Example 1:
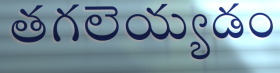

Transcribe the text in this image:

తగలెయ్యడం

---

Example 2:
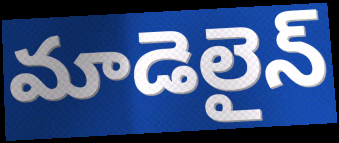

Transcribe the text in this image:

మాడెలైన్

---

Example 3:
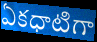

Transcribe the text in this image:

ఏకధాటిగా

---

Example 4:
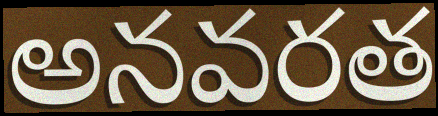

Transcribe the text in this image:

అనవరత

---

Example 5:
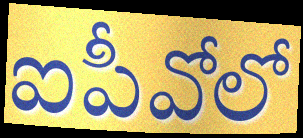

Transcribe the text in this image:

ఐపీవోలో